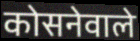
कोसनेवाले